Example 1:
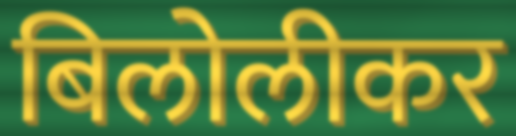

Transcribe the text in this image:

बिलोलीकर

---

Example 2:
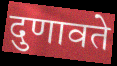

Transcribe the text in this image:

दुणावते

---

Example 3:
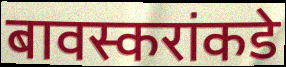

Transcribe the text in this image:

बावस्करांकडे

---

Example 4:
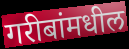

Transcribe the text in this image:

गरीबांमधील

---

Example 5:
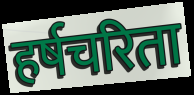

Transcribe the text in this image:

हर्षचरिता